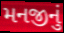
મનજીનું